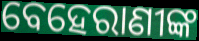
ବେହେରାଣୀଙ୍କ